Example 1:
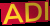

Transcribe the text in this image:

ADI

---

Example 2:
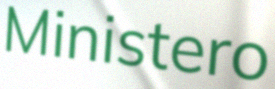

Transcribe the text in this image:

Ministero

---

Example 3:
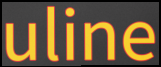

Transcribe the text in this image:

uline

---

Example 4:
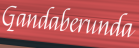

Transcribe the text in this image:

Gandaberunda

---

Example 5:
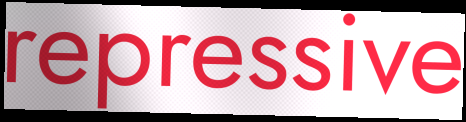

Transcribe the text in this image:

repressive